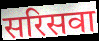
सरिसवा